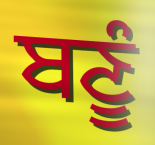
ਬਣੂੰ